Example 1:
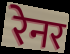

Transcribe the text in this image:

रेनर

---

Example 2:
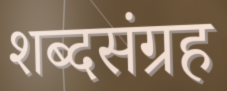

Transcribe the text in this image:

शब्दसंग्रह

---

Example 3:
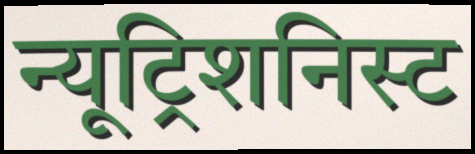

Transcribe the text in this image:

न्‍यूट्रिशनिस्‍ट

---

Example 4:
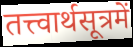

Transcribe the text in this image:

तत्त्वार्थसूत्रमें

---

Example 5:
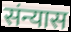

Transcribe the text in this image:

संन्यास